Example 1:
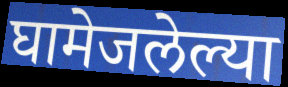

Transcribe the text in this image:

घामेजलेल्या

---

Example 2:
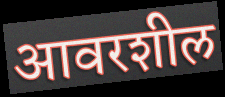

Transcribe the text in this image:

आवरशील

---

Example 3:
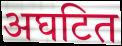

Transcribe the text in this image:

अघटित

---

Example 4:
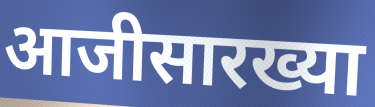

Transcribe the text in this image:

आजीसारख्या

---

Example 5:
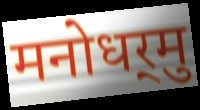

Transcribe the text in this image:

मनोधर्मु